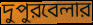
দুপুরবেলার